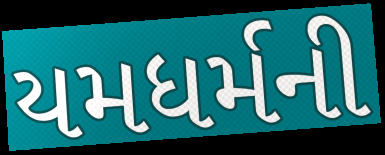
યમધર્મની